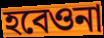
হবেওনা